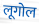
लूगोल